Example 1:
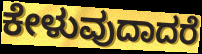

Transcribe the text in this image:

ಕೇಳುವುದಾದರೆ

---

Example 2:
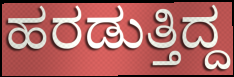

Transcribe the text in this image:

ಹರಡುತ್ತಿದ್ದ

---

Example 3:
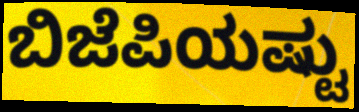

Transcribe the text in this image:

ಬಿಜೆಪಿಯಷ್ಟು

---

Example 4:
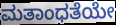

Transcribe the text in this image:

ಮತಾಂಧತೆಯೇ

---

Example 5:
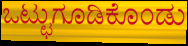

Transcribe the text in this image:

ಒಟ್ಟುಗೂಡಿಕೊಂಡು